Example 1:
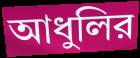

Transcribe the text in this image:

আধুলির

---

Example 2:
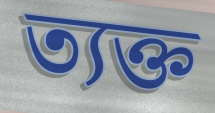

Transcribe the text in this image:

ত্যক্ত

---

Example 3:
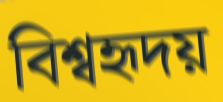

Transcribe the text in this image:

বিশ্বহৃদয়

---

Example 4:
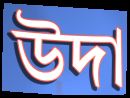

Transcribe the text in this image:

উদা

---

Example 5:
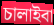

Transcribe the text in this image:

চালাইবা